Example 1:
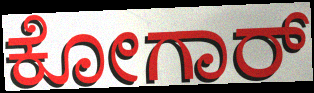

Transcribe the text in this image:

ಕೋಗಾರ್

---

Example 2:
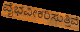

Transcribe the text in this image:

ವೈಭವೀಕರಿಸುತ್ತಿವೆ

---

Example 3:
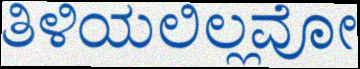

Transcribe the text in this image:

ತಿಳಿಯಲಿಲ್ಲವೋ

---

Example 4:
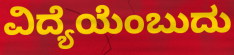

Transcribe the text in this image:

ವಿದ್ಯೆಯೆಂಬುದು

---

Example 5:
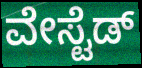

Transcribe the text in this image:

ವೇಸ್ಟೆಡ್